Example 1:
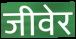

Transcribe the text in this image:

जीवेर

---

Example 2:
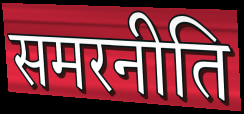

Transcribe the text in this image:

समरनीति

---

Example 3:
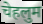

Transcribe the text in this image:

चेहलुम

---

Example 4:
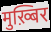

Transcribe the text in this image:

मुख़्बिर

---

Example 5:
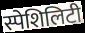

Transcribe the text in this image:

स्पेशिलिटी